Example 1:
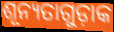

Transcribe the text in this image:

ଶୂନ୍ୟତାଗୁଡ଼ାକ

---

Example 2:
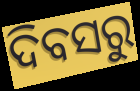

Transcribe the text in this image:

ଦିବସରୁ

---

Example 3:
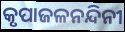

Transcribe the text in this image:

କୃପାଜଳନନ୍ଦିନୀ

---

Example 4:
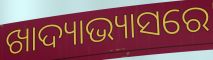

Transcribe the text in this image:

ଖାଦ୍ୟାଭ୍ୟାସରେ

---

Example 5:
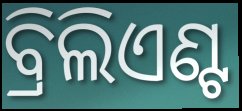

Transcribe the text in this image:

ବ୍ରିଲିଏଣ୍ଟ